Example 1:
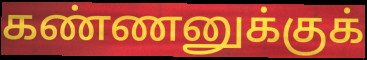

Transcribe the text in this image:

கண்ணனுக்குக்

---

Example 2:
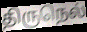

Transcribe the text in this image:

திருநெல்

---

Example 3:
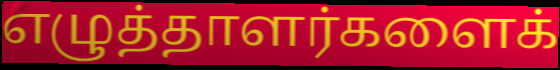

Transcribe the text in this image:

எழுத்தாளர்களைக்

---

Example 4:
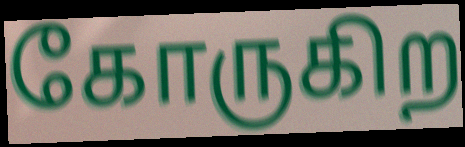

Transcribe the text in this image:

கோருகிற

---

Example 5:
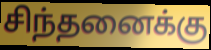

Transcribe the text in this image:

சிந்தனைக்கு